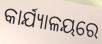
କାର୍ଯ୍ୟାଳୟରେ